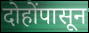
दोहोंपासून